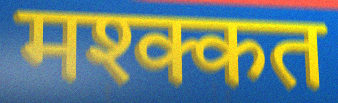
मश्क्कत